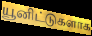
யூனிட்டுகளாக